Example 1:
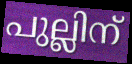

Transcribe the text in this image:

പുല്ലിന്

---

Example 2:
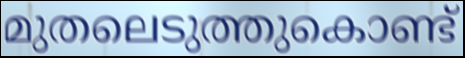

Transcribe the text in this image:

മുതലെടുത്തുകൊണ്ട്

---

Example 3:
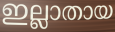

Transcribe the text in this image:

ഇല്ലാതായ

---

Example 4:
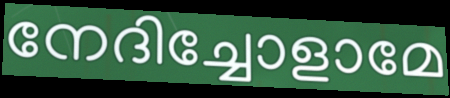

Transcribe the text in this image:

നേദിച്ചോളാമേ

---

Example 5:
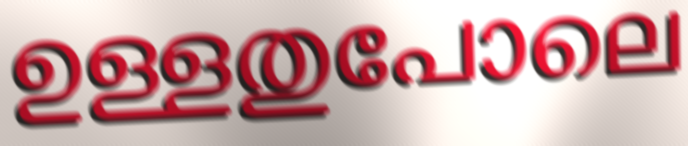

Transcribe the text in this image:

ഉള്ളതുപോലെ